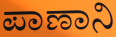
ಪಾಣಾನಿ